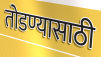
तोडण्यासाठी